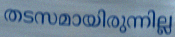
തടസമായിരുന്നില്ല